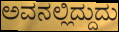
ಅವನಲ್ಲಿದ್ದುದು